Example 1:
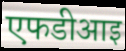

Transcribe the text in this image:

एफडीआइ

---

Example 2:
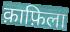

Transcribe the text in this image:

क़ाफ़िला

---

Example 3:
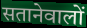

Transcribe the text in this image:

सतानेवालों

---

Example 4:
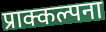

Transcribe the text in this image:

प्राक्कल्पना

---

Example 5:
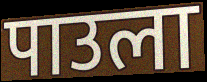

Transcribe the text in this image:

पाउला